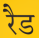
रैड